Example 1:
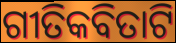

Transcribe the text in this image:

ଗୀତିକବିତାଟି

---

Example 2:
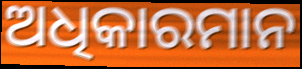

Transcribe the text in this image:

ଅଧିକାରମାନ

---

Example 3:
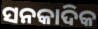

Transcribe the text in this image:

ସନକାଦିକ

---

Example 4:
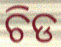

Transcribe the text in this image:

ଚିଡ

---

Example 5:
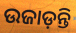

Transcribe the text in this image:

ଉଜାଡ଼ନ୍ତି